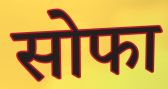
सोफा